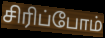
சிரிப்போம்